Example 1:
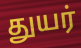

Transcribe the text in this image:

துயர்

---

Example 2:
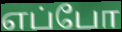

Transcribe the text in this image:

எப்போ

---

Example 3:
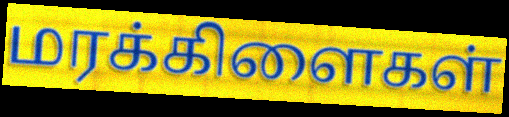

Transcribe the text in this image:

மரக்கிளைகள்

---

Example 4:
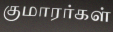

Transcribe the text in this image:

குமாரர்கள்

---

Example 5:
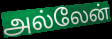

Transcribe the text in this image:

அல்லேன்